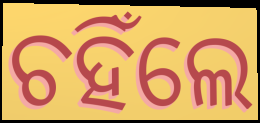
ଚହିଁଲେ